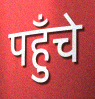
पहुँचे